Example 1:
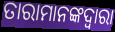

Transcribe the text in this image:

ତାରାମାନଙ୍କଦ୍ୱାରା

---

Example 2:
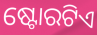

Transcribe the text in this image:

ଷ୍ଟୋରଟିଏ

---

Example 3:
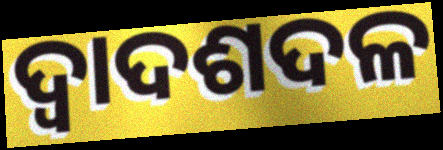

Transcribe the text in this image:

ଦ୍ୱାଦଶଦଳ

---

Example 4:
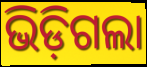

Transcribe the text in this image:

ଭିଡ଼ିଗଲା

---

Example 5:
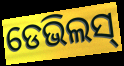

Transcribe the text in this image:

ଡେଭିଲସ୍